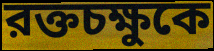
রক্তচক্ষুকে